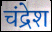
चंद्रेश